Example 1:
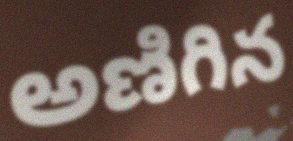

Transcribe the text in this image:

అణిగిన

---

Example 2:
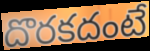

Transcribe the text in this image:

దొరకదంటే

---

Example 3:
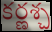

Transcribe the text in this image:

కర్ణశ్చ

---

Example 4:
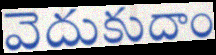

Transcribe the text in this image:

వెదుకుదాం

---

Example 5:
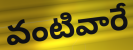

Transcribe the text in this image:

వంటివారే